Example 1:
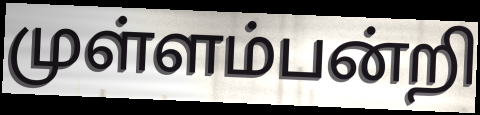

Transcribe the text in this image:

முள்ளம்பன்றி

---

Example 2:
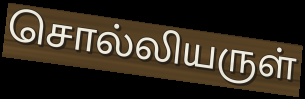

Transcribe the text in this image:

சொல்லியருள்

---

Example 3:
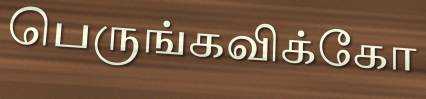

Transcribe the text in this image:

பெருங்கவிக்கோ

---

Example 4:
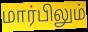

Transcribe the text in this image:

மார்பிலும்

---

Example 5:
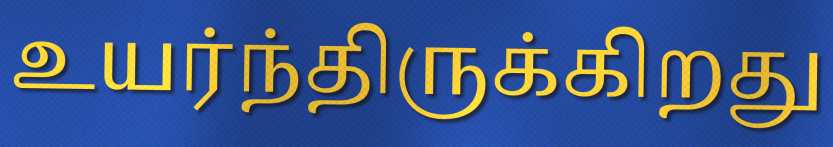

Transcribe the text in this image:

உயர்ந்திருக்கிறது